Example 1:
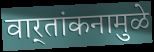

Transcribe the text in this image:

वार्तांकनामुळे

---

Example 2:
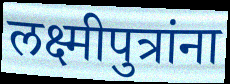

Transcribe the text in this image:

लक्ष्मीपुत्रांना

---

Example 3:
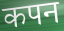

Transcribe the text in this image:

कपन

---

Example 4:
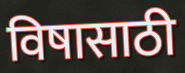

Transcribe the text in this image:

विषासाठी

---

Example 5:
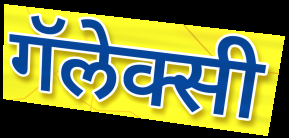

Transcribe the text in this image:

गॅलेक्सी